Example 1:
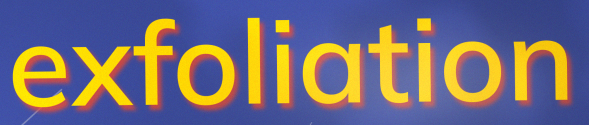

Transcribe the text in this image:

exfoliation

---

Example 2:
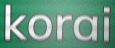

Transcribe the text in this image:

korai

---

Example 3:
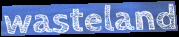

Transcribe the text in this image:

wasteland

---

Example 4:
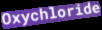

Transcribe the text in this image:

Oxychloride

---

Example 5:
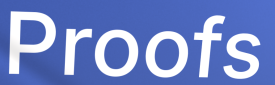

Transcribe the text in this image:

Proofs